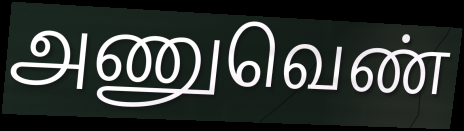
அணுவெண்